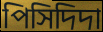
পিসিদিদা